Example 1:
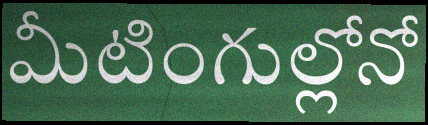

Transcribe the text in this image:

మీటింగుల్లోనో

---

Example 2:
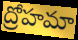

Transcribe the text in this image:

ద్రోహమా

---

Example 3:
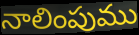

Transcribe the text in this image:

నాలింపుము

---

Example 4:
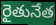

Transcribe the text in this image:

రైతునేత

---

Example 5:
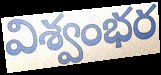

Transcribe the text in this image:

విశ్వంభర